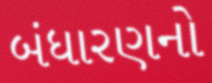
બંધારણનો